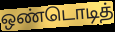
ஒண்டொடித்